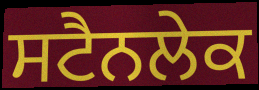
ਸਟੈਨਲੇਕ